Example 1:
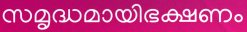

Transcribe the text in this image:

സമൃദ്ധമായിഭക്ഷണം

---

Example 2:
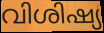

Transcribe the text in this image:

വിശിഷ്യ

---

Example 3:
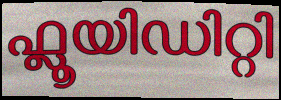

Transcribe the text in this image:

ഫ്ലൂയിഡിറ്റി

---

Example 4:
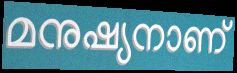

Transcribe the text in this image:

മനുഷ്യനാണ്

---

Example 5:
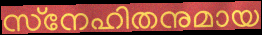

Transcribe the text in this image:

സ്‌നേഹിതനുമായ